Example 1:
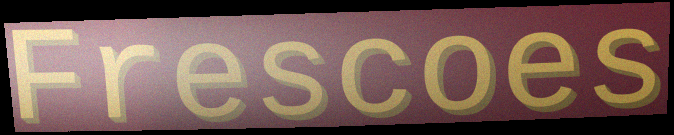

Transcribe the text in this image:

Frescoes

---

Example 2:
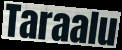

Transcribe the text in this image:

Taraalu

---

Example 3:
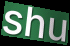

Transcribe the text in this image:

shu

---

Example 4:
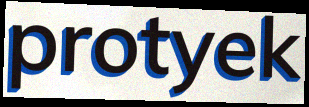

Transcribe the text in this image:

protyek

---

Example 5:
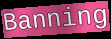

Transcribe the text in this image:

Banning